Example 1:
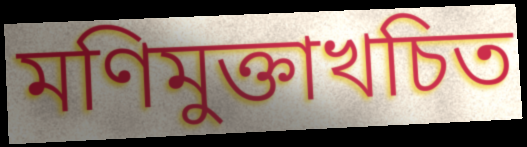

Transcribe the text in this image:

মণিমুক্তাখচিত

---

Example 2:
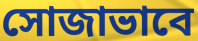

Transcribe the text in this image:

সোজাভাবে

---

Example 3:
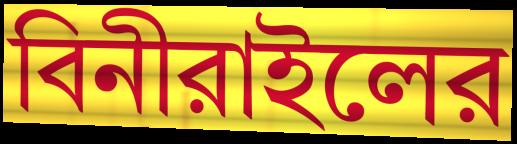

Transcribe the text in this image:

বিনীরাইলের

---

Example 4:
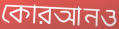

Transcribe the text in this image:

কোরআনও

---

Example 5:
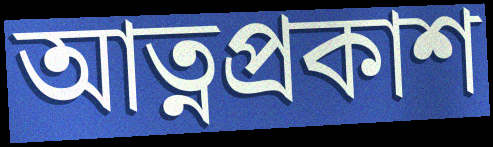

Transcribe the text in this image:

আত্নপ্রকাশ